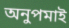
অনুপমাই